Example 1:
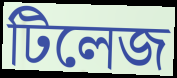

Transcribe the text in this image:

টিলেজ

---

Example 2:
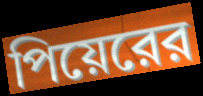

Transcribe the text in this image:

পিয়েরের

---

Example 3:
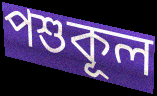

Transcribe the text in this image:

পশুকূল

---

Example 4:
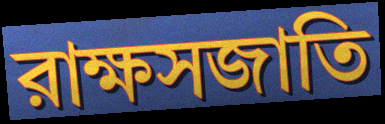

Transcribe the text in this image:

রাক্ষসজাতি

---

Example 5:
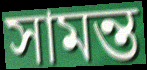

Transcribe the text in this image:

সামন্ত